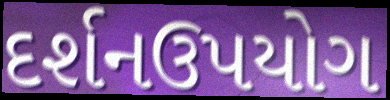
દર્શનઉપયોગ